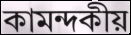
কামন্দকীয়